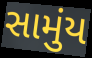
સામુંય